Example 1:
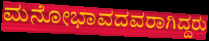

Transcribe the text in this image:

ಮನೋಭಾವದವರಾಗಿದ್ದರು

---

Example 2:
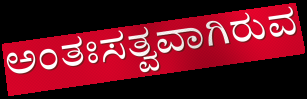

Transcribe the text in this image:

ಅಂತಃಸತ್ವವಾಗಿರುವ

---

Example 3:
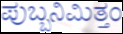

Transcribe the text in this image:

ಪುಬ್ಬನಿಮಿತ್ತಂ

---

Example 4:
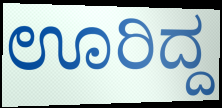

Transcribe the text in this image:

ಊರಿದ್ದ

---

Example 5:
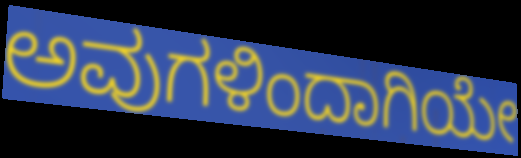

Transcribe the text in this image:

ಅವುಗಳಿಂದಾಗಿಯೇ